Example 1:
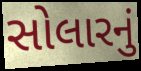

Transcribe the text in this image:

સોલારનું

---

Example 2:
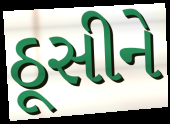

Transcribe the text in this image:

ઠૂસીને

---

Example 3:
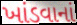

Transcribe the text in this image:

ખાંડવાનાં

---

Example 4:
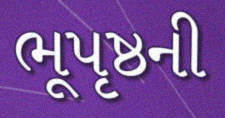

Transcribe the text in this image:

ભૂપૃષ્ઠની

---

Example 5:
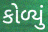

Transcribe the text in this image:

કોળ્યું